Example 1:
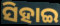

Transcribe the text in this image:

ସିହାଇ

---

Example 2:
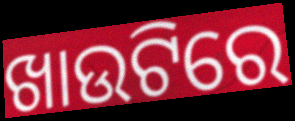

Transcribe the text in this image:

ଖାଉଟିରେ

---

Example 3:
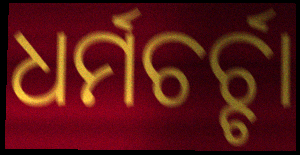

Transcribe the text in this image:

ଧର୍ମଚର୍ଚ୍ଚା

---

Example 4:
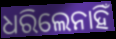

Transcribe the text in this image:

ଧରିଲେନାହିଁ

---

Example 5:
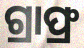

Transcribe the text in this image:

ଗ୍ରାଫ୍ର